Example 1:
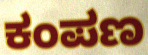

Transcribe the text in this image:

ಕಂಪಣ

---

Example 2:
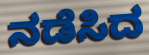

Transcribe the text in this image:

ನಡೆಸಿದ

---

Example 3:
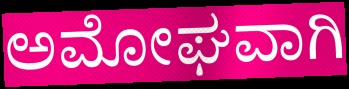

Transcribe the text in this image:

ಅಮೋಘವಾಗಿ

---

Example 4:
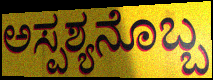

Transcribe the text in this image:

ಅಸ್ಪಶ್ಯನೊಬ್ಬ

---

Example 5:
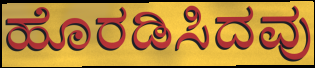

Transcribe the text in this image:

ಹೊರಡಿಸಿದವು